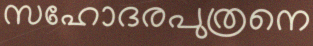
സഹോദരപുത്രനെ